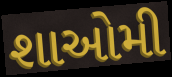
શાઓમી